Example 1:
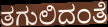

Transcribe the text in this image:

ತಗುಲಿದಂತೆ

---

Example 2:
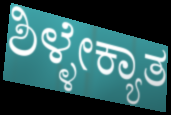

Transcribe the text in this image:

ಶಿಳ್ಳೇಕ್ಯಾತ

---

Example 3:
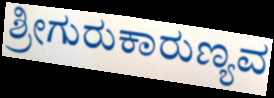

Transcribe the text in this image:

ಶ್ರೀಗುರುಕಾರುಣ್ಯವ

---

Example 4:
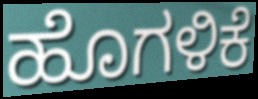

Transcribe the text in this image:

ಹೊಗಳಿಕೆ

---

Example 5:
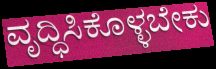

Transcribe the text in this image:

ವೃದ್ಧಿಸಿಕೊಳ್ಳಬೇಕು